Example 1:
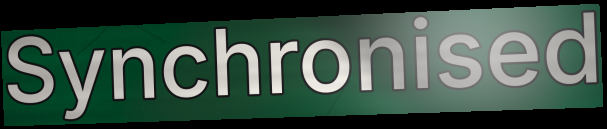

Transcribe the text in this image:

Synchronised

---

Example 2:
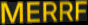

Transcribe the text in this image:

MERRF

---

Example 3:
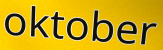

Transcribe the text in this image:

oktober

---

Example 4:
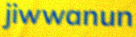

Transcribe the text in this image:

jiwwanun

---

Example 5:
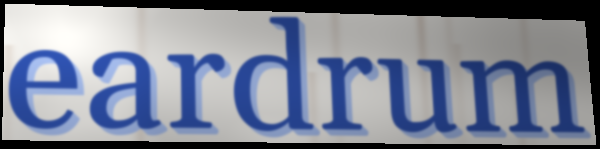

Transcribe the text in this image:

eardrum